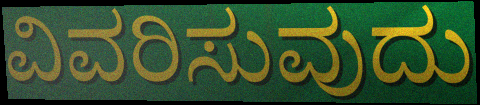
ವಿವರಿಸುವುದು